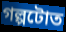
গল্পটোত